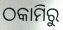
ଠକାମିରୁ